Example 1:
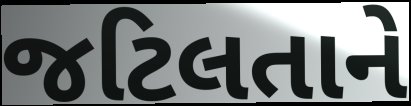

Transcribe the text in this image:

જટિલતાને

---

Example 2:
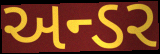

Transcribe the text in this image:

અન્ડર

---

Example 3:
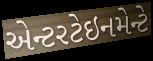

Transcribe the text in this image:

એન્ટરટેઇનમેન્ટે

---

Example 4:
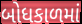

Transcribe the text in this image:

બોધકાળમાં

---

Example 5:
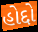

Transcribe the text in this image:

હોદ્દો